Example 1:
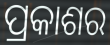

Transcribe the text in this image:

ପ୍ରକାଶର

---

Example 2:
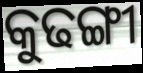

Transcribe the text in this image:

କୁଢଙ୍ଗୀ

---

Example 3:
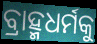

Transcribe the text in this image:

ବ୍ରାହ୍ମଧର୍ମକୁ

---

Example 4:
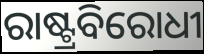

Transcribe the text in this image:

ରାଷ୍ଟ୍ରବିରୋଧୀ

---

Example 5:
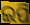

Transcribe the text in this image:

ଇପି